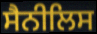
ਸੈਨੀਲਿਸ